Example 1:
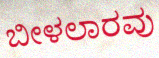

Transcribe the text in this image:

ಬೀಳಲಾರವು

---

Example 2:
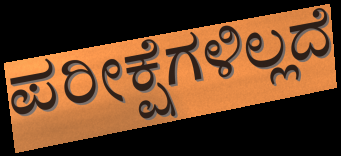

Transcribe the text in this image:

ಪರೀಕ್ಷೆಗಳಿಲ್ಲದೆ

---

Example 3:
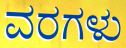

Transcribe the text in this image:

ವರಗಳು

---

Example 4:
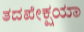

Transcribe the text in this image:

ತದಪೇಕ್ಷಯಾ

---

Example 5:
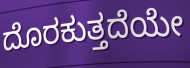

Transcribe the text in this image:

ದೊರಕುತ್ತದೆಯೇ